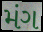
મંગ